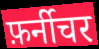
फ़र्नीचर